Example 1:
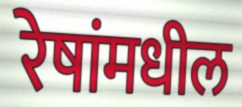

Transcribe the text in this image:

रेषांमधील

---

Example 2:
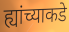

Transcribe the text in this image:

ह्यांच्याकडे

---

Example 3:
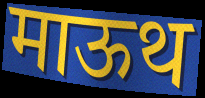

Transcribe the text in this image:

माऊथ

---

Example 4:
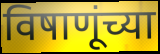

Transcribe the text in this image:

विषाणूंच्या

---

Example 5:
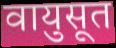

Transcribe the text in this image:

वायुसूत